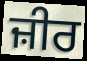
ਜ਼ੀਰ